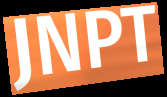
JNPT